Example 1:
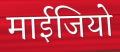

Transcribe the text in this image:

माईजियो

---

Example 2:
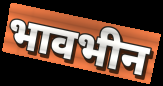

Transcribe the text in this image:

भावभीन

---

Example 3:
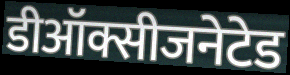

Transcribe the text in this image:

डीऑक्सीजनेटेड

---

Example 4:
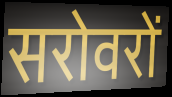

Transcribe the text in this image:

सरोवरों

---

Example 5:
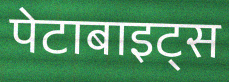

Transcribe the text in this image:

पेटाबाइट्स